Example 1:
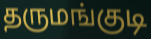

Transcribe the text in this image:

தருமங்குடி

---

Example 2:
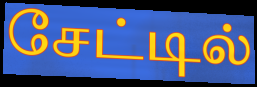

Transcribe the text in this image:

சேட்டில்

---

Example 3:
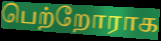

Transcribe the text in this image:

பெற்றோராக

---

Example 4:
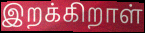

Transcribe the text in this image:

இறக்கிறாள்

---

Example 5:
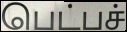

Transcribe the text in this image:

பெட்பச்